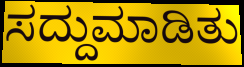
ಸದ್ದುಮಾಡಿತು